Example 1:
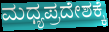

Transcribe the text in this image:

ಮಧ್ಯಪ್ರದೇಶಕ್ಕೆ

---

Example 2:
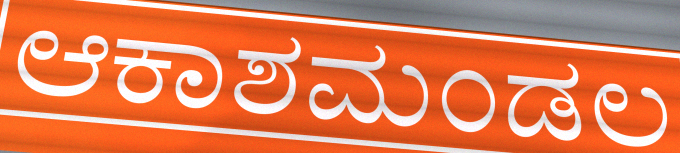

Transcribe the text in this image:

ಆಕಾಶಮಂಡಲ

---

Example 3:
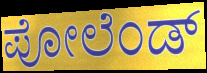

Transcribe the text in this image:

ಪೋಲೆಂಡ್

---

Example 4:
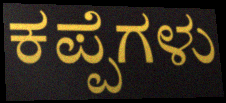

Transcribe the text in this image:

ಕಪ್ಪೆಗಳು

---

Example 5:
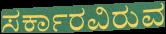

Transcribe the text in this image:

ಸರ್ಕಾರವಿರುವ